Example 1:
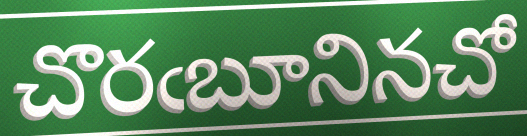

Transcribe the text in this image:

చొరఁబూనినచో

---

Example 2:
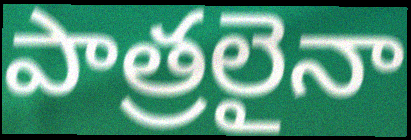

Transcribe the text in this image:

పాత్రలైనా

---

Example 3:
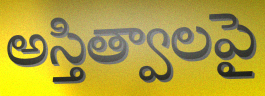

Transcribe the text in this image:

అస్తిత్వాలపై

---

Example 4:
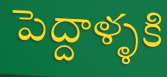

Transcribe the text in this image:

పెద్దాళ్ళకి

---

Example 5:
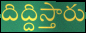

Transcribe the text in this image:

దిద్దిస్తారు